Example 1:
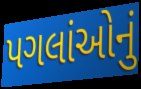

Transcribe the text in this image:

પગલાંઓનું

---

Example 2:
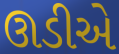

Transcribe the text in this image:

ઊડીએ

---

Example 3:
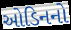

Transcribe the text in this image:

ઓડિનનો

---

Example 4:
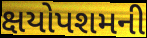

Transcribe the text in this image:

ક્ષયોપશમની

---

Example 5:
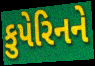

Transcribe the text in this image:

કુપેરિનને